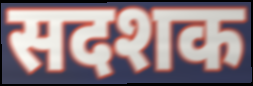
सदशक